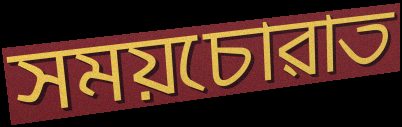
সময়চোৱাত